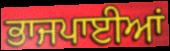
ਭਾਜਪਾਈਆਂ